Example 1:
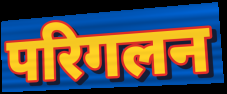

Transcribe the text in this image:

परिगलन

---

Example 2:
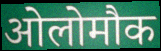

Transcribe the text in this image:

ओलोमौक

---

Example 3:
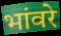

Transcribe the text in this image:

भांवरे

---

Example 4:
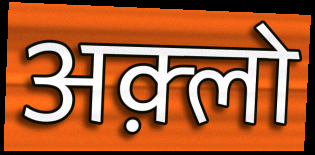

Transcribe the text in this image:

अक़्लो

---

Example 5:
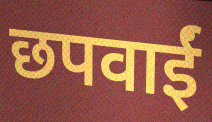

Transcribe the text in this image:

छपवाईं